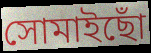
সোমাইছোঁ